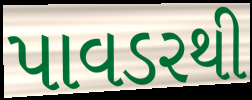
પાવડરથી